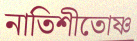
নাতিশীতোষ্ণ